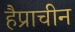
हैप्राचीन